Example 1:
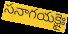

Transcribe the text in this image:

సనాగయక్షైః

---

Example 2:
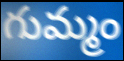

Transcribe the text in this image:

గుమ్మం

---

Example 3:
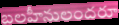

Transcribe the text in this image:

బలహీనులందరూ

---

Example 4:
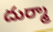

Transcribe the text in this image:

దుర్మా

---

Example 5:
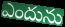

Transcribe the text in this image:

ఎందును